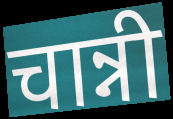
चान्नी